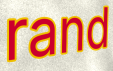
rand